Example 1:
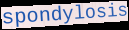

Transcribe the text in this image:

spondylosis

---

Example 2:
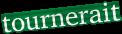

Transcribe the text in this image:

tournerait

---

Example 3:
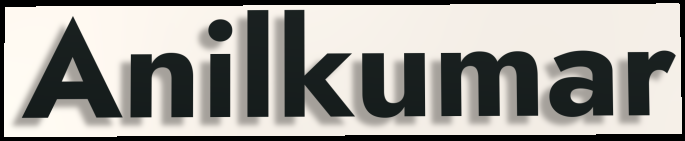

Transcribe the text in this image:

Anilkumar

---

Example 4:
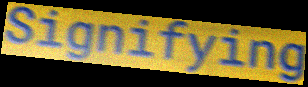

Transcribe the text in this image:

Signifying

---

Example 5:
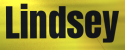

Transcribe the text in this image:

Lindsey